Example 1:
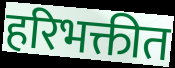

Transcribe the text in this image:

हरिभक्तीत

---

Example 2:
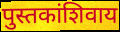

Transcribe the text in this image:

पुस्तकांशिवाय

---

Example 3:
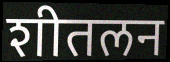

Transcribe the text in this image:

शीतलन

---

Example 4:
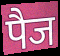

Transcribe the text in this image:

पैज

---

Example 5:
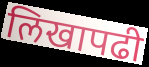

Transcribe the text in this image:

लिखापढी